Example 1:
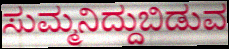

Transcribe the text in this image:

ಸುಮ್ಮನಿದ್ದುಬಿಡುವ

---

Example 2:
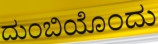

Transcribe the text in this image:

ದುಂಬಿಯೊಂದು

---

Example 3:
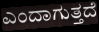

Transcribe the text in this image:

ಎಂದಾಗುತ್ತದೆ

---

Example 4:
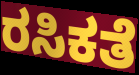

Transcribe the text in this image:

ರಸಿಕತೆ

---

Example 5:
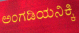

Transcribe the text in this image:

ಅಂಗಡಿಯನಿಕ್ಕಿ